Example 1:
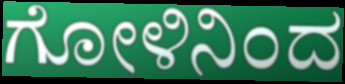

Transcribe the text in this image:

ಗೋಳಿನಿಂದ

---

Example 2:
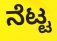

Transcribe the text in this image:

ನೆಟ್ಟ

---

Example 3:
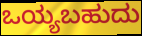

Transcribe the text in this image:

ಒಯ್ಯಬಹುದು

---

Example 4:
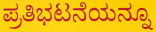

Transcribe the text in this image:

ಪ್ರತಿಭಟನೆಯನ್ನೂ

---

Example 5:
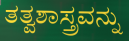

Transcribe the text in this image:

ತತ್ವಶಾಸ್ತ್ರವನ್ನು